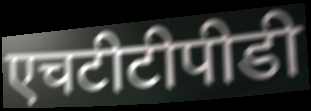
एचटीटीपीडी